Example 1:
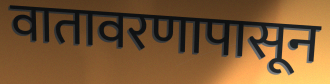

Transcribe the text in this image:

वातावरणापासून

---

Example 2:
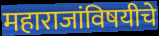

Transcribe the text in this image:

महाराजांविषयीचे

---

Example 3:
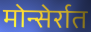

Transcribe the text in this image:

मोन्सेर्रात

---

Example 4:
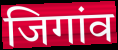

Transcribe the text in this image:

जिगांव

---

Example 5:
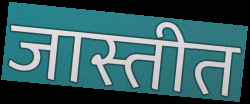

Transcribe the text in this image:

जास्तीत